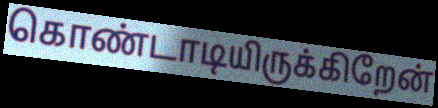
கொண்டாடியிருக்கிறேன்